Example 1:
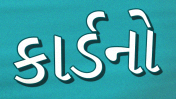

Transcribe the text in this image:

કાર્ડનો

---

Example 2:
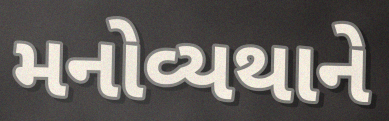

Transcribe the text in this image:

મનોવ્યથાને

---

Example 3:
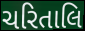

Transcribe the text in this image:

ચરિતાલિ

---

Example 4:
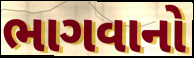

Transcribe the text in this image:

ભાગવાનો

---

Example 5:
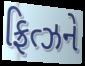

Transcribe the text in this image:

ફ્રિત્ઝને